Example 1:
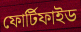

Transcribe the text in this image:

ফোর্টিফাইড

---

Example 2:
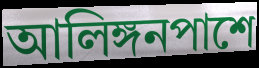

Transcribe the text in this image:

আলিঙ্গনপাশে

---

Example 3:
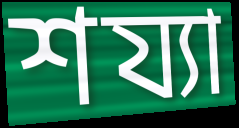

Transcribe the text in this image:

শয্যা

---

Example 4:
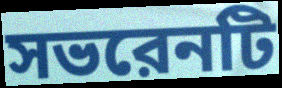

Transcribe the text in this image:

সভরেনটি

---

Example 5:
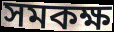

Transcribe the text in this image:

সমকক্ষ